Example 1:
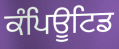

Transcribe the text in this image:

ਕੰਪਿਊਟਿਡ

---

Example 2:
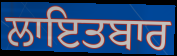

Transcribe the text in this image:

ਲਾਇਤਬਾਰ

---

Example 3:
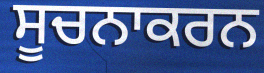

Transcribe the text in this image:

ਸੂਚਨਾਕਰਨ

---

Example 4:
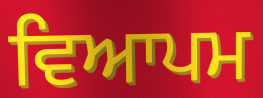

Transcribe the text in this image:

ਵਿਆਪਮ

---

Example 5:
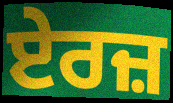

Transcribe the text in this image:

ਏਰਜ਼